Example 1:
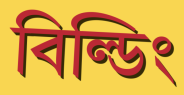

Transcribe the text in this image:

বিল্ডিং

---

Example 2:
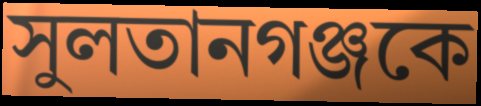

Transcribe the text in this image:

সুলতানগঞ্জকে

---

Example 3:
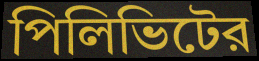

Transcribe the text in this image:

পিলিভিটের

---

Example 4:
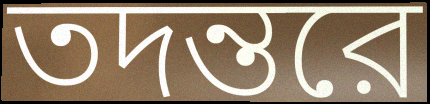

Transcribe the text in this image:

তদন্তরে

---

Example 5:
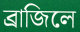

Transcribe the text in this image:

ব্রাজিলে